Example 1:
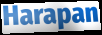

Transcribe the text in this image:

Harapan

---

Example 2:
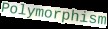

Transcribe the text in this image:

Polymorphism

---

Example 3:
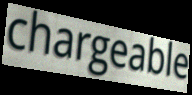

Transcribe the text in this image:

chargeable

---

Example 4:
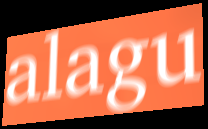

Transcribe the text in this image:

alagu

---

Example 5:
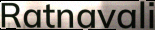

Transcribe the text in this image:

Ratnavali